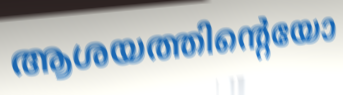
ആശയത്തിന്റെയോ